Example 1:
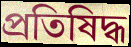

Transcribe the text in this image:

প্রতিষিদ্ধ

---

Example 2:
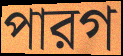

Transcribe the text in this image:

পারগ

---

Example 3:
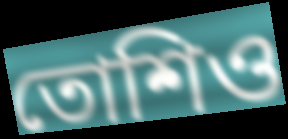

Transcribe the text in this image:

তোশিও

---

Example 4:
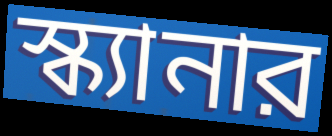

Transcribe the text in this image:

স্ক্যানার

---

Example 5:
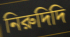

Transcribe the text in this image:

নিরুদিদি